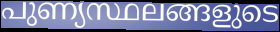
പുണ്യസ്ഥലങ്ങളുടെ